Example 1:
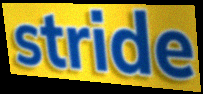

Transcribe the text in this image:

stride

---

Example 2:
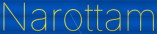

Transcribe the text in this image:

Narottam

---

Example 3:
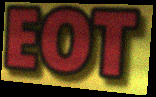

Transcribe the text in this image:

EOT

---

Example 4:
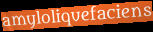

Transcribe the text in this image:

amyloliquefaciens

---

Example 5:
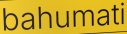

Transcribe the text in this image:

bahumati